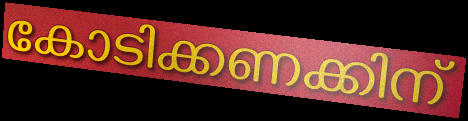
കോടിക്കണക്കിന്